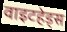
वाइटहेड्स